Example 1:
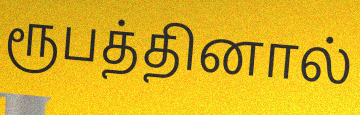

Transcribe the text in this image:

ரூபத்தினால்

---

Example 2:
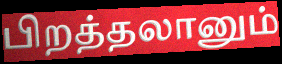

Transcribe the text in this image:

பிறத்தலானும்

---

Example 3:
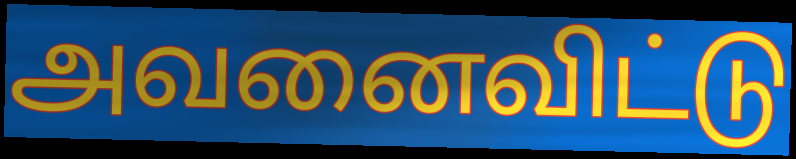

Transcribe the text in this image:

அவனைவிட்டு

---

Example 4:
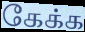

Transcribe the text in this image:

கேக்க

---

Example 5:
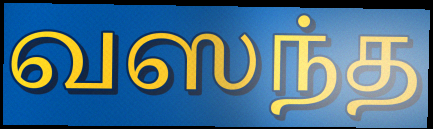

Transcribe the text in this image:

வஸந்த